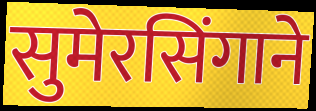
सुमेरसिंगाने